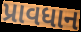
પ્રાવધાન